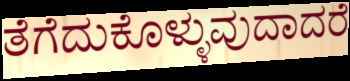
ತೆಗೆದುಕೊಳ್ಳುವುದಾದರೆ